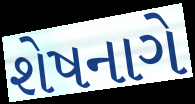
શેષનાગે